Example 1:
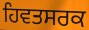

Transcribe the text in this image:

ਹਿਵਤਸਰਕ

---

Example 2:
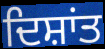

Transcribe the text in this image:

ਦਿਸ਼ਾਂਤ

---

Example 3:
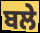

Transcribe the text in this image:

ਬਲੇ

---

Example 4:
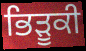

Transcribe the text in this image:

ਭਿੜੂਕੀ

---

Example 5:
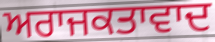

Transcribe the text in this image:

ਅਰਾਜਕਤਾਵਾਦ